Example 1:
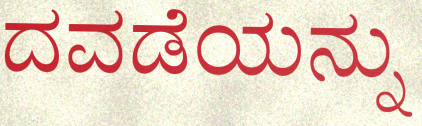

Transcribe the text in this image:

ದವಡೆಯನ್ನು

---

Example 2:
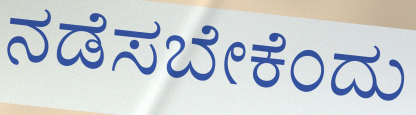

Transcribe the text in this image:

ನಡೆಸಬೇಕೆಂದು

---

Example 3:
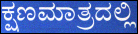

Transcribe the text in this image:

ಕ್ಷಣಮಾತ್ರದಲ್ಲಿ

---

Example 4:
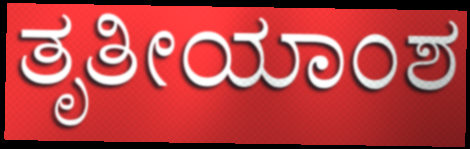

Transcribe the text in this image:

ತೃತೀಯಾಂಶ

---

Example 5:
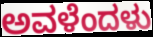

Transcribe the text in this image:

ಅವಳೆಂದಳು